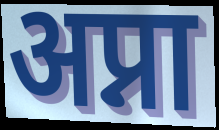
अप्ना